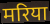
मरिया